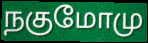
நகுமோமு